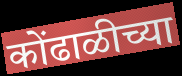
कोंढाळीच्या